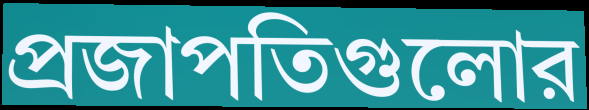
প্রজাপতিগুলোর